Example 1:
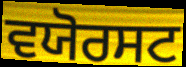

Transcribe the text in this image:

ਵਯੋਰਸਟ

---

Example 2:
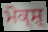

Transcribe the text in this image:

ਮੋਕ੍ਸ਼੍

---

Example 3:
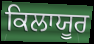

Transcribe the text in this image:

ਕਿਲਾਯੂਰ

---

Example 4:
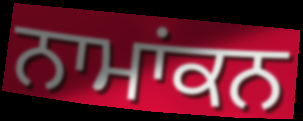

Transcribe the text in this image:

ਨਾਮਾਂਕਨ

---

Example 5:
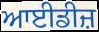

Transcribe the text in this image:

ਆਈਡੀਜ਼